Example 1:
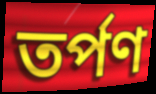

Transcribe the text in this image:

তর্পণ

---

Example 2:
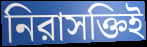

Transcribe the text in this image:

নিরাসক্তিই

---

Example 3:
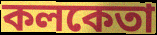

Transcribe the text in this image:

কলকেতা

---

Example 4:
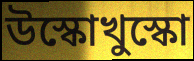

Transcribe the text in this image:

উস্কোখুস্কো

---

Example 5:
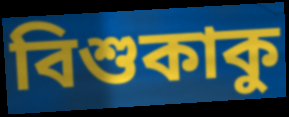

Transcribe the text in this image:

বিশুকাকু